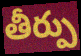
తీర్పు